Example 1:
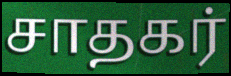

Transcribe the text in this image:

சாதகர்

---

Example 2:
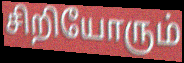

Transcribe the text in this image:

சிறியோரும்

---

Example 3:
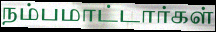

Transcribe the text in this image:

நம்பமாட்டார்கள்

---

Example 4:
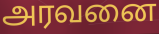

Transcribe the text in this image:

அரவனை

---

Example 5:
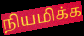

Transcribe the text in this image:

நியமிக்க